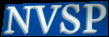
NVSP